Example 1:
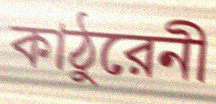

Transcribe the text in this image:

কাঠুরেনী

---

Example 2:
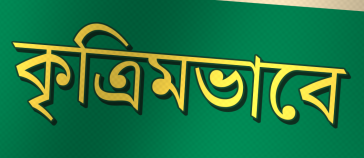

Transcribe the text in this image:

কৃত্রিমভাবে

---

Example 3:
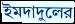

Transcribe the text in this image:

ইমদাদুলের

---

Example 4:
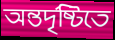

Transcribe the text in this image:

অন্তর্দৃষ্টিতে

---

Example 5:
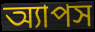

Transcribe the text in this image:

অ্যাপস